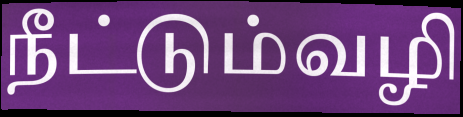
நீட்டும்வழி